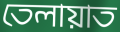
তেলায়াত